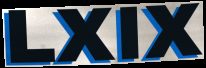
LXIX